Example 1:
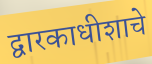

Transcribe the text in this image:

द्वारकाधीशाचे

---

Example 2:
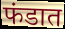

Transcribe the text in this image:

फंडात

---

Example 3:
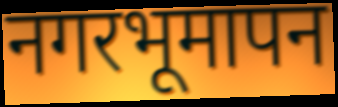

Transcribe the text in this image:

नगरभूमापन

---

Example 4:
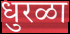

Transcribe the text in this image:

धुरळा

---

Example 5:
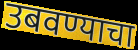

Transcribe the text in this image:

उबवण्याचा